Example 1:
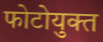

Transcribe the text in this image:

फोटोयुक्त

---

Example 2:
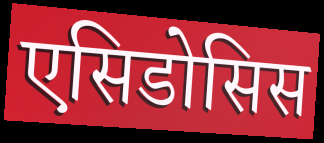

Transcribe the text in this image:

एसिडोसिस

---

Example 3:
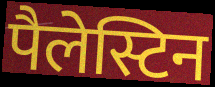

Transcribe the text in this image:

पैलेस्टिन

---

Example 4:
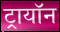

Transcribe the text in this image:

ट्रायॉन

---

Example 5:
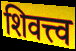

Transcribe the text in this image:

शिवत्त्व